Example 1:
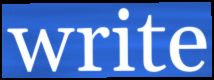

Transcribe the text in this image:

write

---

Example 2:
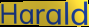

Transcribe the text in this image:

Harald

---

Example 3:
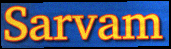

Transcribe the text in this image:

Sarvam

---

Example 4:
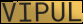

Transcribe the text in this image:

VIPUL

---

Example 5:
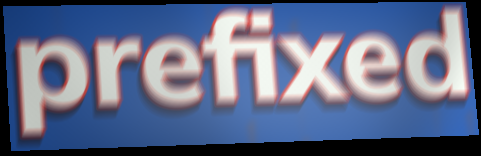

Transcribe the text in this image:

prefixed